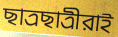
ছাত্রছাত্রীরাই